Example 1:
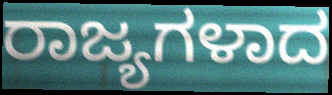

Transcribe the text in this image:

ರಾಜ್ಯಗಳಾದ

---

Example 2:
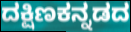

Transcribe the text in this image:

ದಕ್ಷಿಣಕನ್ನಡದ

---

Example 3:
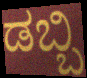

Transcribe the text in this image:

ಡಬ್ಬಿ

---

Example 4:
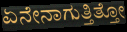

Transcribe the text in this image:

ಏನೇನಾಗುತ್ತಿತ್ತೋ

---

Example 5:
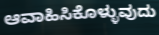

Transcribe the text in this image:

ಆವಾಹಿಸಿಕೊಳ್ಳುವುದು